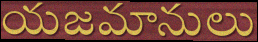
యజమానులు